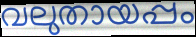
വലുതായപ്പം